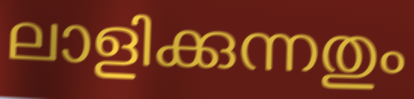
ലാളിക്കുന്നതും